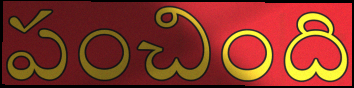
పంచింది